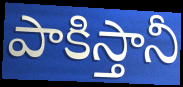
పాకిస్తానీ